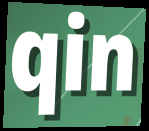
qin